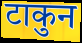
टाकुन